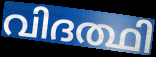
വിദത്ഥി